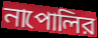
নাপোলির